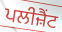
ਪਲੀਜ਼ੈਂਟ